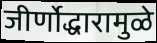
जीर्णोद्धारामुळे